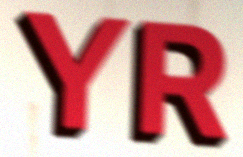
YR